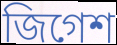
জিগেশ